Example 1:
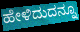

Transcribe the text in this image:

ಹೇಳಿದುದನ್ನೂ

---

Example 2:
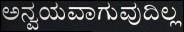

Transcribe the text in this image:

ಅನ್ವಯವಾಗುವುದಿಲ್ಲ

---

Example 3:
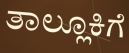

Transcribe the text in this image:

ತಾಲ್ಲೂಕಿಗೆ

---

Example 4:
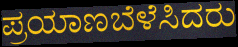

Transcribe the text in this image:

ಪ್ರಯಾಣಬೆಳೆಸಿದರು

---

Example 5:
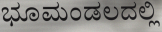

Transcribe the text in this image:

ಭೂಮಂಡಲದಲ್ಲಿ